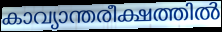
കാവ്യാന്തരീക്ഷത്തിൽ